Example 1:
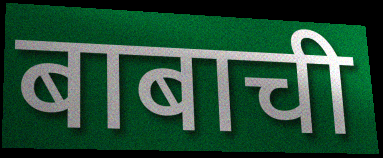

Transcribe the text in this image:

बाबाची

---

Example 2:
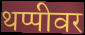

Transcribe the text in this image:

थप्पीवर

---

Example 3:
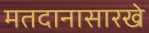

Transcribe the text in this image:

मतदानासारखे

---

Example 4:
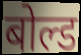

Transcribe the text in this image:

बोल्ड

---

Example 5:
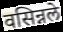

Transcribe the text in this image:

वसिन्नले